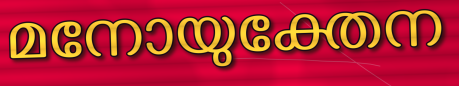
മനോയുക്തേന